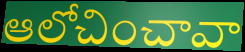
ఆలోచించావా